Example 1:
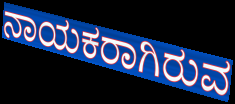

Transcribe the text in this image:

ನಾಯಕರಾಗಿರುವ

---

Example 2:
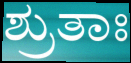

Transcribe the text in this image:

ಶ್ರುತಾಃ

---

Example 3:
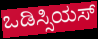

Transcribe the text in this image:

ಒಡಿಸ್ಸಿಯಸ್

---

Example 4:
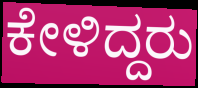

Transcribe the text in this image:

ಕೇಳಿದ್ದರು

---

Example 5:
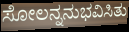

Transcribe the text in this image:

ಸೋಲನ್ನನುಭವಿಸಿತು